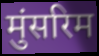
मुंसरिम